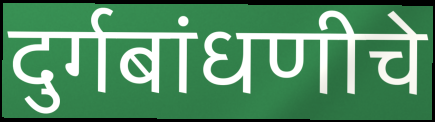
दुर्गबांधणीचे